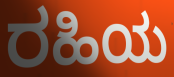
ರಹಿಯ